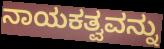
ನಾಯಕತ್ವವನ್ನು